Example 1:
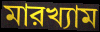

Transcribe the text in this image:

মারখ্যাম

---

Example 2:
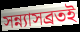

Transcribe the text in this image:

সন্ন্যাসব্রতই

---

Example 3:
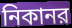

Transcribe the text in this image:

নিকানর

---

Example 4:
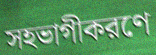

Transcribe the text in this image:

সহভাগীকরণে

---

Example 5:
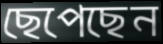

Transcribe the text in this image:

ছেপেছেন